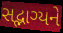
સદ્ભાગ્યને